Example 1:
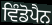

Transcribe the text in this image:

ਵਿੰਡੋਪੈਨ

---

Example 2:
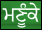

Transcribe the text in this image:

ਮਣੂੰਕੇ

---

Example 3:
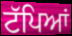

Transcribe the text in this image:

ਟੱਪਿਆਂ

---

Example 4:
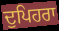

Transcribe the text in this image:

ਦੁਪਿਹਰਾ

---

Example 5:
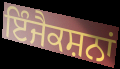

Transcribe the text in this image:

ਇੰਜੈਕਸ਼ਨਾਂ